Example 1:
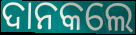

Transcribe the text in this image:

ଦାନକଲେ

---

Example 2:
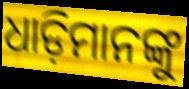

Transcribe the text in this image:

ଧାଡ଼ିମାନଙ୍କୁ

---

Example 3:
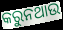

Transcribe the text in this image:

କରୁନଥାଉ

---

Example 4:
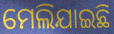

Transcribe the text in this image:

ମେଲିଯାଇଛି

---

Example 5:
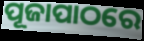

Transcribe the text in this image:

ପୂଜାପାଠରେ